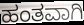
ಹಂತವಾಗಿ